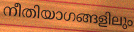
നീതിയാഗങ്ങളിലും